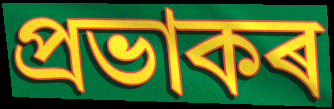
প্ৰভাকৰ